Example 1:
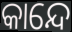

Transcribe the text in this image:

କାନ୍ଦେ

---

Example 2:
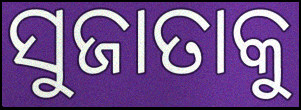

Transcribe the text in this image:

ସୁଜାତାକୁ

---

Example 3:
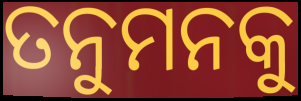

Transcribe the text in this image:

ତନୁମନକୁ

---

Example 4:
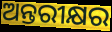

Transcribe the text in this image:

ଅନ୍ତରୀକ୍ଷର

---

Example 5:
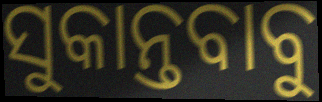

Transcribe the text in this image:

ସୁକାନ୍ତବାବୁ